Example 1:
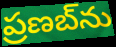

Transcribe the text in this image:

ప్రణబ్‌ను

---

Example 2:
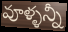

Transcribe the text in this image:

వూళ్ళన్నీ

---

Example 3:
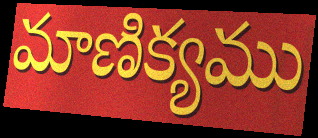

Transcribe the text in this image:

మాణిక్యము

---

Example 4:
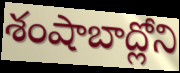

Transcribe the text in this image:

శంషాబాద్లోని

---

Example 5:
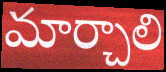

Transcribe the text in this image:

మార్చాలి